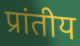
प्रांतीय